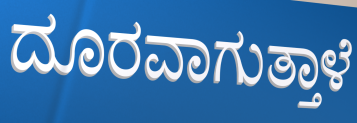
ದೂರವಾಗುತ್ತಾಳೆ